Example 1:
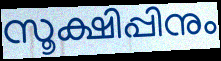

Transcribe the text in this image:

സൂക്ഷിപ്പിനും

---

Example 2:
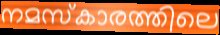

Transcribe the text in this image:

നമസ്കാരത്തിലെ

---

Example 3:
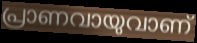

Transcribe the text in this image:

പ്രാണവായുവാണ്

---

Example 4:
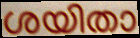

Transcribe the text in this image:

ശയിതാ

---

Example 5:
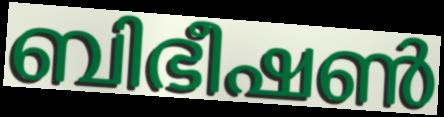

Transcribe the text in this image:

ബിഭീഷൺ